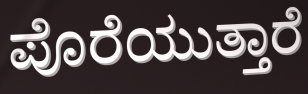
ಪೊರೆಯುತ್ತಾರೆ